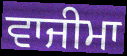
ਵਾਜੀਮਾ